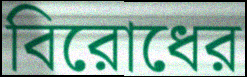
বিরোধের